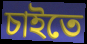
চাইতে